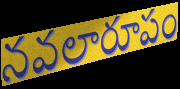
నవలారూపం